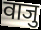
वाजु